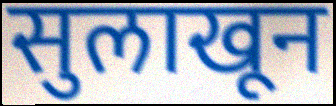
सुलाखून